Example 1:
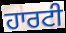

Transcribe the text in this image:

ਹਾਰਟੀ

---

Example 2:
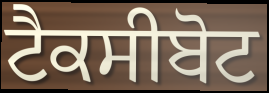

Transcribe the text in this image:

ਟੈਕਸੀਬੋਟ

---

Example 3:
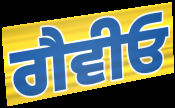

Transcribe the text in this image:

ਗੈਵੀਓ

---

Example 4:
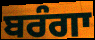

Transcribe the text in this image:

ਬਰੰਗਾ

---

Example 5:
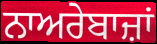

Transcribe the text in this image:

ਨਾਅਰੇਬਾਜ਼ਾਂ